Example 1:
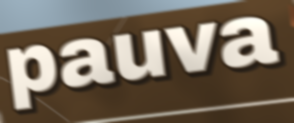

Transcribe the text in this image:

pauva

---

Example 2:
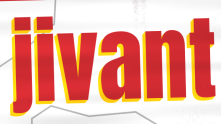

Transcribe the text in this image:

jivant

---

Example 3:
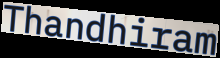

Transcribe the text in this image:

Thandhiram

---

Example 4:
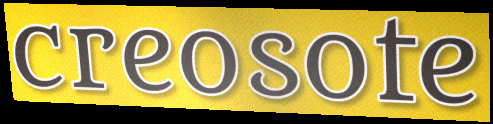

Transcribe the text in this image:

creosote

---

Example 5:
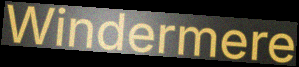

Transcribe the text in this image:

Windermere